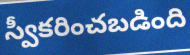
స్వీకరించబడింది